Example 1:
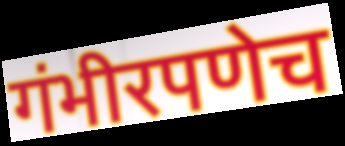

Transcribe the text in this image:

गंभीरपणेच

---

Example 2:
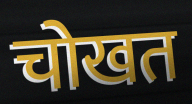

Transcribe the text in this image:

चोखत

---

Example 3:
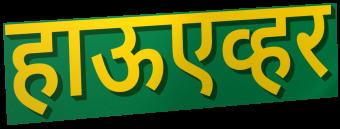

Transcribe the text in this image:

हाऊएव्हर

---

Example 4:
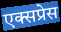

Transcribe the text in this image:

एक्सप्रेस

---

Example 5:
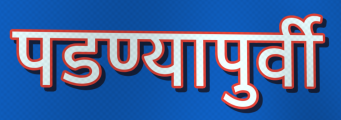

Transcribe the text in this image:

पडण्यापुर्वी